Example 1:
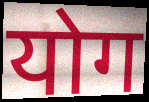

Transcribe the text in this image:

योग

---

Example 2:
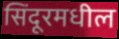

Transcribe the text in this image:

सिंदूरमधील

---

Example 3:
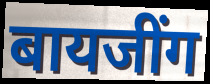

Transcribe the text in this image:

बायजींग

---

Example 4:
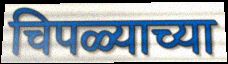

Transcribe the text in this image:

चिपळ्याच्या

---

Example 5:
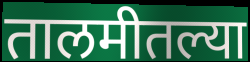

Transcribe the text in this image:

तालमीतल्या